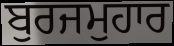
ਬੁਰਜਮੁਹਾਰ